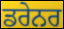
ਡਰੇਨਰ